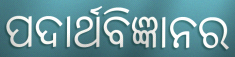
ପଦାର୍ଥବିଜ୍ଞାନର